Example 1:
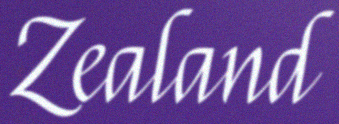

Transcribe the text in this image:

Zealand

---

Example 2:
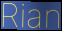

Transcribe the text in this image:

Rian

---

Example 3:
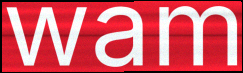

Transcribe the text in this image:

wam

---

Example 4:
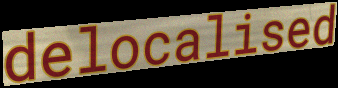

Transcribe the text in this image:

delocalised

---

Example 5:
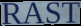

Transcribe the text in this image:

RAST